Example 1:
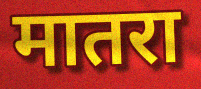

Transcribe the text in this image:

मातरा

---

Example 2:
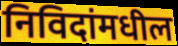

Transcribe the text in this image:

निविदांमधील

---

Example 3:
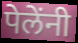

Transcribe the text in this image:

पेलेंनी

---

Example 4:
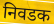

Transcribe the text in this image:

निवडक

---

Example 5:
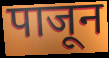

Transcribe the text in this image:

पाजून